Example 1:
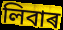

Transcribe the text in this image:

লিবাৰ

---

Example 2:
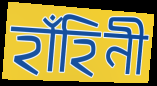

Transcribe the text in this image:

হাঁহিনী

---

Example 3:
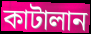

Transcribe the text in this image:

কাটালান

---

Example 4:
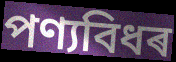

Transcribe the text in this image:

পণ্যবিধৰ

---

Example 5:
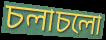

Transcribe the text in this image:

চলাচলো